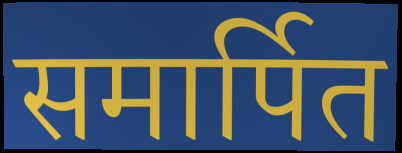
समार्पित